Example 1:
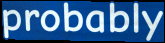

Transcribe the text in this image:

probably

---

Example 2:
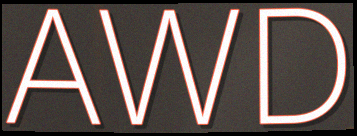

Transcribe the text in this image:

AWD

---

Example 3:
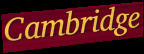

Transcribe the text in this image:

Cambridge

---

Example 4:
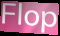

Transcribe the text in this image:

Flop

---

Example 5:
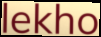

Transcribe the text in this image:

lekho